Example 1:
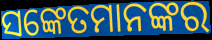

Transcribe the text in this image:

ସଙ୍କେତମାନଙ୍କର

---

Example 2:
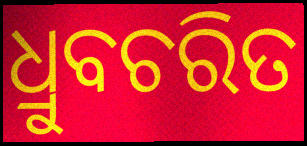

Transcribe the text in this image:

ଧ୍ରୁବଚରିତ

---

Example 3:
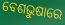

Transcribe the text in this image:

ବେଶଭୁଷାରେ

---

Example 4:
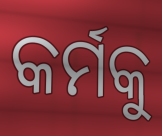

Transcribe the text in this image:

କର୍ମକୁ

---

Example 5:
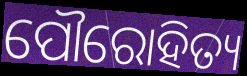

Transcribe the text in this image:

ପୌରୋହିତ୍ୟ